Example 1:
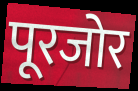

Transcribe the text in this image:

पूरजोर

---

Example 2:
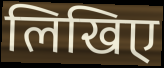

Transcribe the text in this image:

लिखिए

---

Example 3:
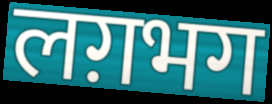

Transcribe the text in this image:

लग़भग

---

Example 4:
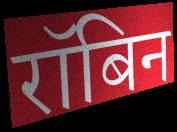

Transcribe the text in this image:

रॉबिन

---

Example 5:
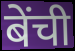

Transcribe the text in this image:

बेंची